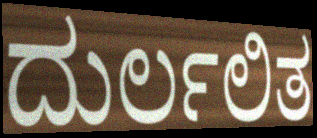
ದುರ್ಲಲಿತ